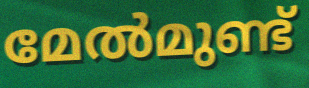
മേൽമുണ്ട്